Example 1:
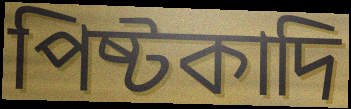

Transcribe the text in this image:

পিষ্টকাদি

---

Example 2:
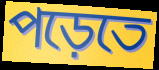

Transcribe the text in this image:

পড়েতে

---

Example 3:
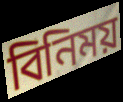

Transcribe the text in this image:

বিনিময়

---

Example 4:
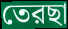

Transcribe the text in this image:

তেরছা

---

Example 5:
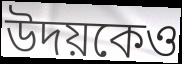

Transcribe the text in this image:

উদয়কেও